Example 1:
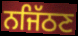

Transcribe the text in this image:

ਨਜਿੱਠਣ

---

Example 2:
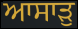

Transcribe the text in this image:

ਆਸਾੜੁ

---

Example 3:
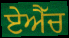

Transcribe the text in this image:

ਏਐੱਚ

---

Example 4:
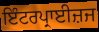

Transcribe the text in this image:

ਇੰਟਰਪ੍ਰਾਈਜ਼ਜ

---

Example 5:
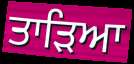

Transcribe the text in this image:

ਤਾੜਿਆ